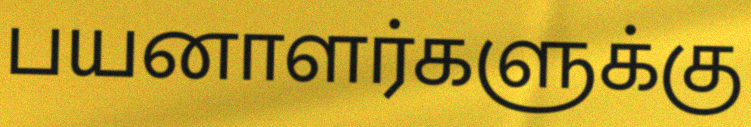
பயனாளர்களுக்கு